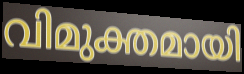
വിമുക്തമായി